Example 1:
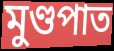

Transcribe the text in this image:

মুণ্ডপাত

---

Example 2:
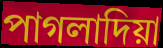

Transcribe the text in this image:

পাগলাদিয়া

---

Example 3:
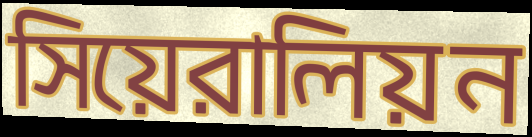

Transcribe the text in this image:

সিয়েরালিয়ন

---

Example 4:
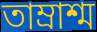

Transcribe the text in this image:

তাম্রাশ্ম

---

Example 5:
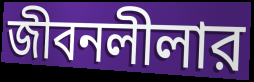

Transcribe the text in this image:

জীবনলীলার